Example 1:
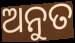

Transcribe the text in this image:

ଅନୁତ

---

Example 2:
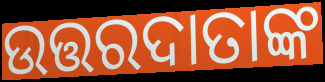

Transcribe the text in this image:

ଉତ୍ତରଦାତାଙ୍କ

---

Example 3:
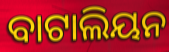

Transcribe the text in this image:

ବାଟାଲିୟନ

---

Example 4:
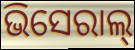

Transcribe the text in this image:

ଭିସେରାଲ୍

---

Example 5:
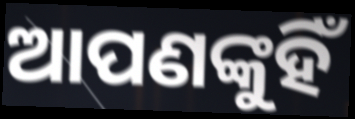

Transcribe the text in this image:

ଆପଣଙ୍କୁହିଁ